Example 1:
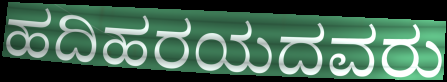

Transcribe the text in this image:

ಹದಿಹರಯದವರು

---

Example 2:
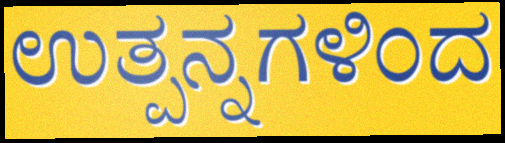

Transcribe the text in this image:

ಉತ್ಪನ್ನಗಳಿಂದ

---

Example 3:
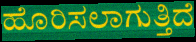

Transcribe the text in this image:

ಹೊರಿಸಲಾಗುತ್ತಿದೆ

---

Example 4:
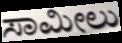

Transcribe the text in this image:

ಸಾಮೀಲು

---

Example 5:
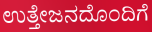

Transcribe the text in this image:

ಉತ್ತೇಜನದೊಂದಿಗೆ